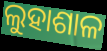
ଲୁହାଶାଳ